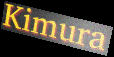
Kimura